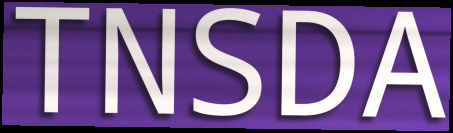
TNSDA